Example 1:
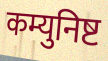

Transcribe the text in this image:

कम्युनिष्ट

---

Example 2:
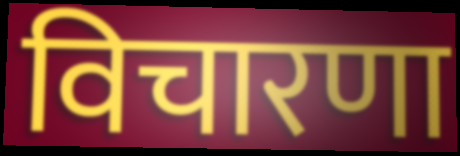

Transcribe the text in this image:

विचारणा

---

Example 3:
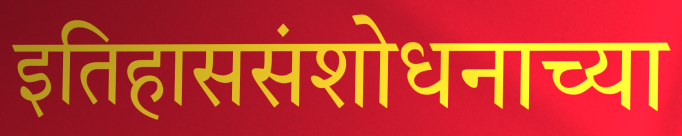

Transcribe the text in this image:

इतिहाससंशोधनाच्या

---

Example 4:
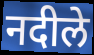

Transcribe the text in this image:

नदीले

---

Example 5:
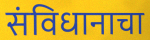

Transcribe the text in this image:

संविधानाचा